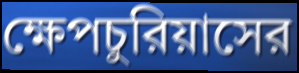
ক্ষেপচুরিয়াসের